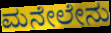
ಮನೇಲೇನು